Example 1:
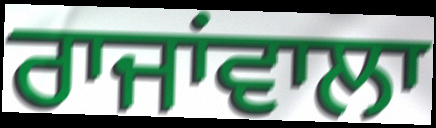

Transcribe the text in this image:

ਰਾਜਾਂਵਾਲਾ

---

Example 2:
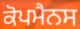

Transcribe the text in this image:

ਕੋਪਮੈਨਸ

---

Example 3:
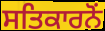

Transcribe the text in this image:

ਸਤਿਕਾਰਨੋਂ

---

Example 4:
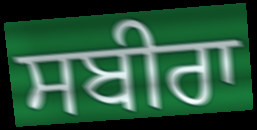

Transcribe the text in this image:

ਸਬੀਰਾ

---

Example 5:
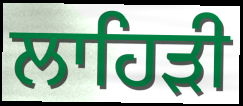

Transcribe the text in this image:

ਲਾਹਿੜੀ